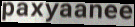
paxyaanee